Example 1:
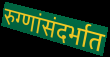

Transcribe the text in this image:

रुग्णांसंदर्भात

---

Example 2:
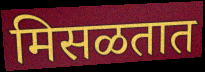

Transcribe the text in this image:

मिसळतात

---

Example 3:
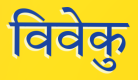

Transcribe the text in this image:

विवेकु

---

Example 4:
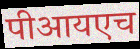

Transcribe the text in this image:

पीआयएच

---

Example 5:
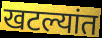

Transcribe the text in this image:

खटल्यांत